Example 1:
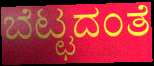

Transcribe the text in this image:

ಬೆಟ್ಟದಂತೆ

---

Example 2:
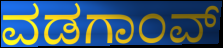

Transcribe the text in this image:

ವಡಗಾಂವ್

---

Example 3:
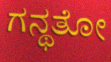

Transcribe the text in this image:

ಗನ್ಥತೋ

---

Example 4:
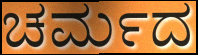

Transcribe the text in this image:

ಚರ್ಮದ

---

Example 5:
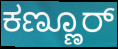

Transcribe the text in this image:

ಕಣ್ಣೂರ್